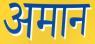
अमान